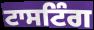
ਟਾਸਟਿੰਗ